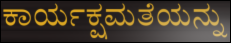
ಕಾರ್ಯಕ್ಷಮತೆಯನ್ನು